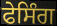
ਫੇਸਿੰਗ